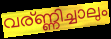
വര്ണ്ണിച്ചാലും